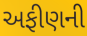
અફીણની